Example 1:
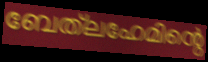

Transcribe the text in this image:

ബേത്‌ലഹേമിന്റെ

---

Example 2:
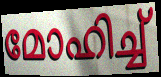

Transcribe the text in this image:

മോഹിച്ച്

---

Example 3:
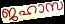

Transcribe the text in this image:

ജഹാസ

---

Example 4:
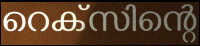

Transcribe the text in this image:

റെക്‌സിന്റെ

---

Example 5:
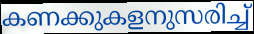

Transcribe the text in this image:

കണക്കുകളനുസരിച്ച്